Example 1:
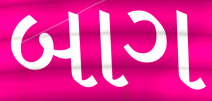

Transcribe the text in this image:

બાગ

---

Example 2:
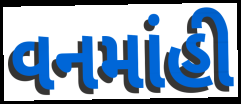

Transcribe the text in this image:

વનમાંહી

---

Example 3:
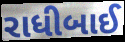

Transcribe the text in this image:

રાધીબાઈ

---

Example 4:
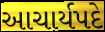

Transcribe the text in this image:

આચાર્યપદે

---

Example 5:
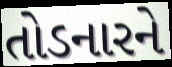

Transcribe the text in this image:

તોડનારને